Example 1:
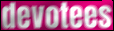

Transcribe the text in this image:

devotees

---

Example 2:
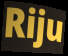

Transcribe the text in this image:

Riju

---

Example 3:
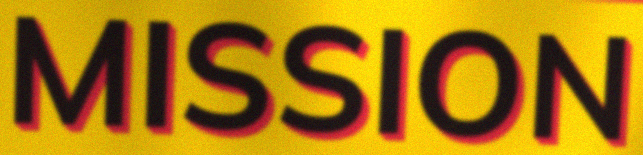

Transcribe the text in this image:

MISSION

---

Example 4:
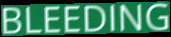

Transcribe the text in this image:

BLEEDING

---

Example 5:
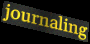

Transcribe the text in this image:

journaling